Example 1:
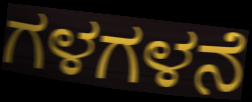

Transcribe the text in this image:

ಗಳಗಳನೆ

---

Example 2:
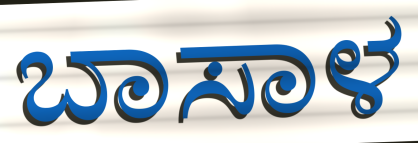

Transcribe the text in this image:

ಬಾಸಾಳ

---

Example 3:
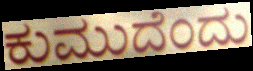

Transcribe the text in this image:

ಕುಮುದೆಂದು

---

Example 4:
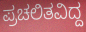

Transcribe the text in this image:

ಪ್ರಚಲಿತವಿದ್ದ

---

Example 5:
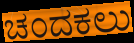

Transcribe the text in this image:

ಚಂದಕಲು